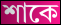
শাকে